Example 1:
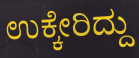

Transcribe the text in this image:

ಉಕ್ಕೇರಿದ್ದು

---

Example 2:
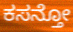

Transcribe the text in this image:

ಕಸನ್ತೋ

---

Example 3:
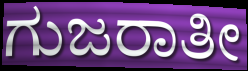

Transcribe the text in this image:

ಗುಜರಾತೀ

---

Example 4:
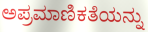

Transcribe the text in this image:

ಅಪ್ರಮಾಣಿಕತೆಯನ್ನು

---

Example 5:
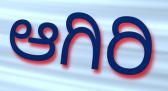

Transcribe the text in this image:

ಆಗಿರಿ